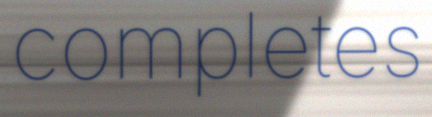
completes